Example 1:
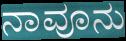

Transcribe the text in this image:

ನಾವೂನು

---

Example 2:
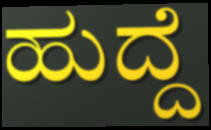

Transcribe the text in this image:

ಹುದ್ದೆ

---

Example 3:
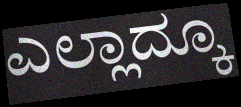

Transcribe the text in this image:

ಎಲ್ಲಾದ್ಕೂ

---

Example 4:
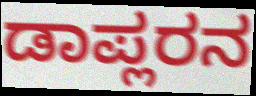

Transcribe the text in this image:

ಡಾಪ್ಲರನ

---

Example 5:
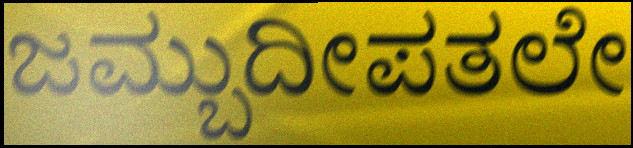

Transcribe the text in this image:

ಜಮ್ಬುದೀಪತಲೇ